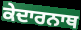
ਕੇਦਾਰਨਾਥ